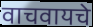
वाचवायचे